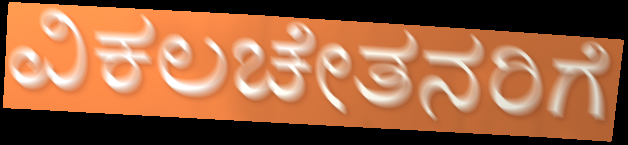
ವಿಕಲಚೇತನರಿಗೆ